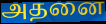
அதனை